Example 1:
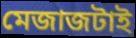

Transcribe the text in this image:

মেজাজটাই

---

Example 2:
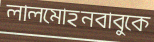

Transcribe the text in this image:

লালমোহনবাবুকে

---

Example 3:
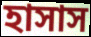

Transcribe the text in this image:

হাসাস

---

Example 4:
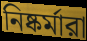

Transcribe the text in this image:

নিষ্কর্মারা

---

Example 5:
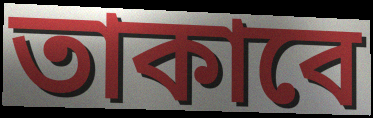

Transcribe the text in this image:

তাকাবে